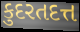
કુદરતદત્ત